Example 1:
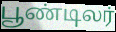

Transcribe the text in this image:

பூண்டிலர்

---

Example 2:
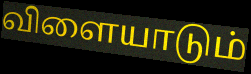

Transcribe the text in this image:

விளையாடும்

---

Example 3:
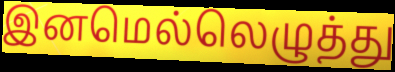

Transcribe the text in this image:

இனமெல்லெழுத்து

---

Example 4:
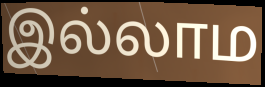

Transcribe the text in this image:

இல்லாம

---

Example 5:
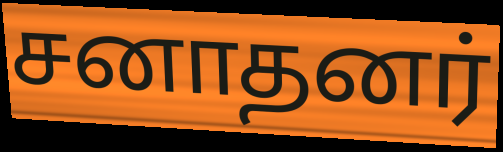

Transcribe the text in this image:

சனாதனர்